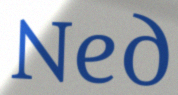
Ned